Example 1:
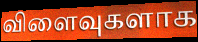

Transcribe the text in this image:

விளைவுகளாக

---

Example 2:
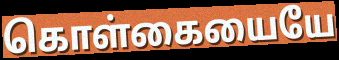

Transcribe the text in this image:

கொள்கையையே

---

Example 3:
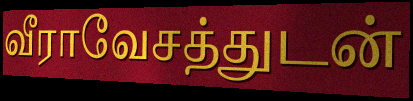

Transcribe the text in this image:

வீராவேசத்துடன்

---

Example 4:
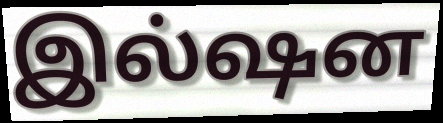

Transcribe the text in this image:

இல்ஷன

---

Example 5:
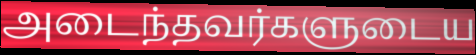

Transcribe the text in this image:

அடைந்தவர்களுடைய